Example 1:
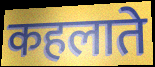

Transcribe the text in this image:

कहलाते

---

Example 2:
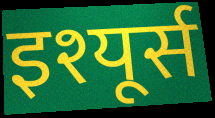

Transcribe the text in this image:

इश्यूर्स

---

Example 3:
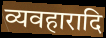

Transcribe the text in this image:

व्यवहारादि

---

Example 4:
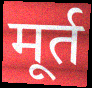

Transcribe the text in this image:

मूर्त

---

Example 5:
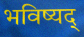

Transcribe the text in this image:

भविष्यद्